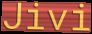
Jivi